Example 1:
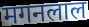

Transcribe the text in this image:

मगनलाल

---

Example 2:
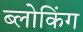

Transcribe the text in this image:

ब्लोकिंग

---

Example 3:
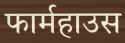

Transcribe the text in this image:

फार्महाउस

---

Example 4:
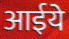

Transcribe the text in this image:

आईये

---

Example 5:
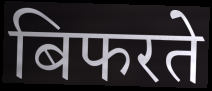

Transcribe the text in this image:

बिफरते